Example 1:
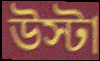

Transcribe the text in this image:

উস্টা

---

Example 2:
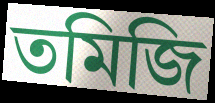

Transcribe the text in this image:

তমিজি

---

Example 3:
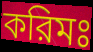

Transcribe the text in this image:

করিমঃ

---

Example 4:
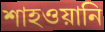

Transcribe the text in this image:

শাহওয়ানি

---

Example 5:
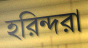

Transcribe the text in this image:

হরিন্দরা